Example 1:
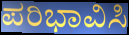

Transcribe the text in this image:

ಪರಿಭಾವಿಸಿ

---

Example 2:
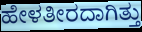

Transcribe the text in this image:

ಹೇಳತೀರದಾಗಿತ್ತು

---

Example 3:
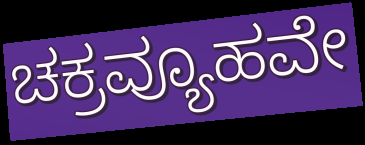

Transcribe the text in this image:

ಚಕ್ರವ್ಯೂಹವೇ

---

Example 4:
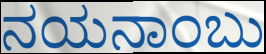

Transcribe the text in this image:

ನಯನಾಂಬು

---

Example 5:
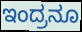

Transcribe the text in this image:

ಇಂದ್ರನೂ